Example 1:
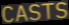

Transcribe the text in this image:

CASTS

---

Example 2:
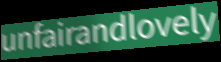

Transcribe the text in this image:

unfairandlovely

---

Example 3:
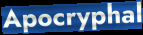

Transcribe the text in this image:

Apocryphal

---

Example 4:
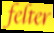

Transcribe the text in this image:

felter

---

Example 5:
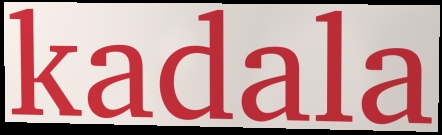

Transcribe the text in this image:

kadala